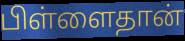
பிள்ளைதான்